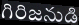
గిరిజనుడి